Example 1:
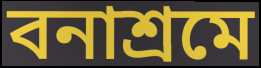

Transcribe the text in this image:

বনাশ্রমে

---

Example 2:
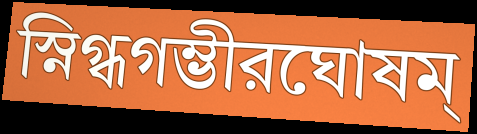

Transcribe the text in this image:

স্নিগ্ধগম্ভীরঘোষম্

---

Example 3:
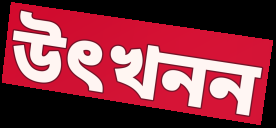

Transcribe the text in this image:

উৎখনন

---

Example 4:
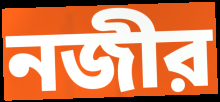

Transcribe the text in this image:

নজীর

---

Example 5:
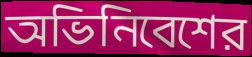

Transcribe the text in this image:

অভিনিবেশের